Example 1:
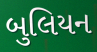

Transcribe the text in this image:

બુલિયન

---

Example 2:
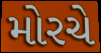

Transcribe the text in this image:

મોરચે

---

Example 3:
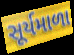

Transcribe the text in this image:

સૂર્યમાળા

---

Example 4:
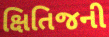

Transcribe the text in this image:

ક્ષિતિજની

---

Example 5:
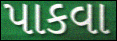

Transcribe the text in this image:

પાકવા